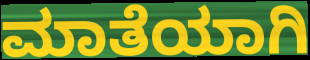
ಮಾತೆಯಾಗಿ